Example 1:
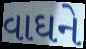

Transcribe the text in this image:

વાઘને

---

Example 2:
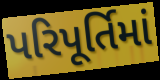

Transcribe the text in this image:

પરિપૂર્તિમાં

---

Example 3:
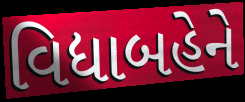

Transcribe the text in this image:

વિદ્યાબહેને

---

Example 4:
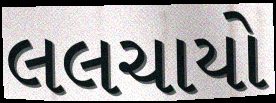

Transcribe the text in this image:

લલચાયો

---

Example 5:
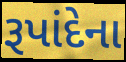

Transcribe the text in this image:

રૂપાંદેના